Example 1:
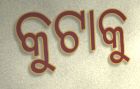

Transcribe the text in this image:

କୁଟାକୁ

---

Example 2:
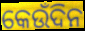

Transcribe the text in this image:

କେଉଁଦିନ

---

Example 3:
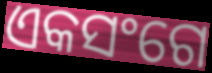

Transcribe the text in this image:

ଏକସଂଗେ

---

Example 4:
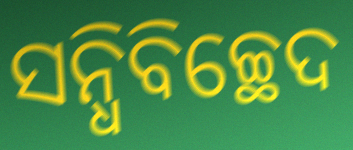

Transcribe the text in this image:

ସନ୍ଧିବିଚ୍ଛେଦ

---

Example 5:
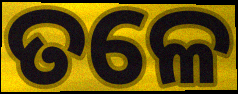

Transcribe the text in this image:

ତଳେ